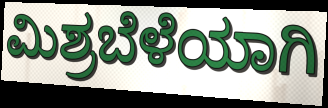
ಮಿಶ್ರಬೆಳೆಯಾಗಿ